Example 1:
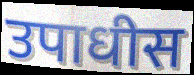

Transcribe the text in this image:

उपाधीस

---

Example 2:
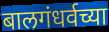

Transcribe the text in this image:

बालगंधर्वच्या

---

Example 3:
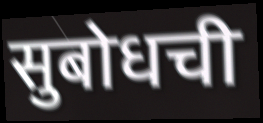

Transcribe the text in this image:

सुबोधची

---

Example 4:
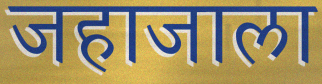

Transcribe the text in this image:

जहाजाला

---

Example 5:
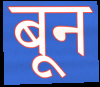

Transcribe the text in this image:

बून